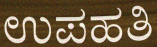
ಉಪಹತಿ